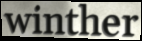
winther